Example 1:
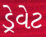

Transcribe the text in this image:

ડ્રેવેટ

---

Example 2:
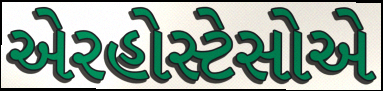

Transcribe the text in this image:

એરહોસ્ટેસોએ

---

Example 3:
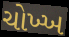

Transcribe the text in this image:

ચોખ્ખ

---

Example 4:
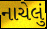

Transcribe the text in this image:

નાચેલું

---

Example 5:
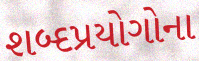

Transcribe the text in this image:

શબ્દપ્રયોગોના